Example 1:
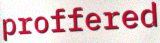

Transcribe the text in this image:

proffered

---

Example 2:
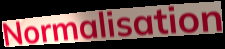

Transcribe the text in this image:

Normalisation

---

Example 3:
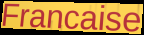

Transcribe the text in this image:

Francaise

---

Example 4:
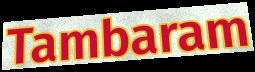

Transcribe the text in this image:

Tambaram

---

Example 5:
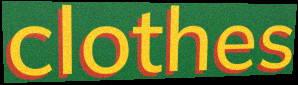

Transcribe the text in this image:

clothes